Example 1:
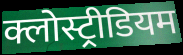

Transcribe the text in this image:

क्लोस्ट्रीडियम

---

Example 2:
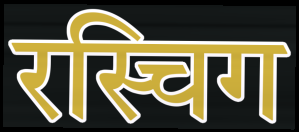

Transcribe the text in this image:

रस्चिग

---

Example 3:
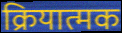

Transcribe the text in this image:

क्रियात्मक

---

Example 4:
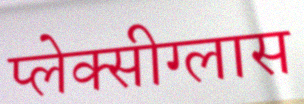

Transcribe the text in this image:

प्लेक्सीग्लास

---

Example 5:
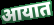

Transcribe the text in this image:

आयात